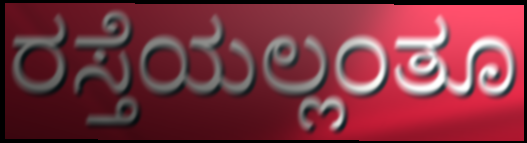
ರಸ್ತೆಯಲ್ಲಂತೂ